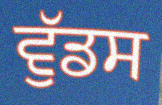
ਵੁੱਡਸ